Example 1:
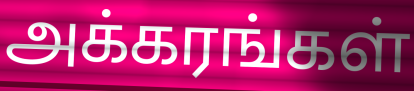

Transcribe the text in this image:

அக்கரங்கள்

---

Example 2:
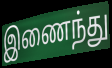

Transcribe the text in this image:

இணைந்து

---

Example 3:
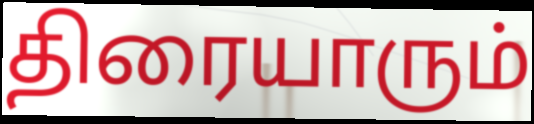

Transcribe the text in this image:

திரையாரும்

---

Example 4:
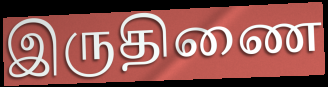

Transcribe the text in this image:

இருதிணை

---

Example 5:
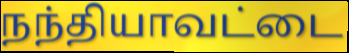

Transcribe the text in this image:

நந்தியாவட்டை